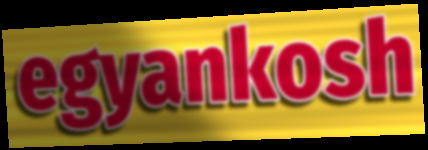
egyankosh